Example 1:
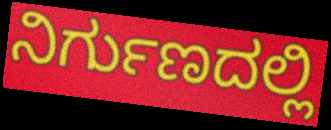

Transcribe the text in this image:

ನಿರ್ಗುಣದಲ್ಲಿ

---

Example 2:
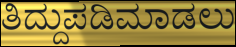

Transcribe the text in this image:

ತಿದ್ದುಪಡಿಮಾಡಲು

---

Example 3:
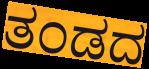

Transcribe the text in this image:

ತಂಡದ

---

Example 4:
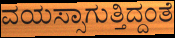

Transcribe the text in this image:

ವಯಸ್ಸಾಗುತ್ತಿದ್ದಂತೆ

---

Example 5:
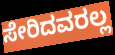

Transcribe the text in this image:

ಸೇರಿದವರಲ್ಲ